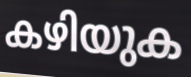
കഴിയുക